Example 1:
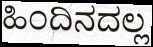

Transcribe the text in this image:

ಹಿಂದಿನದಲ್ಲ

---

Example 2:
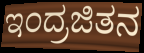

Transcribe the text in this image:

ಇಂದ್ರಜಿತನ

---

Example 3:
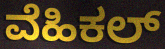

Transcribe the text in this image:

ವೆಹಿಕಲ್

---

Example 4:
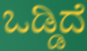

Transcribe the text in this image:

ಒಡ್ಡಿದೆ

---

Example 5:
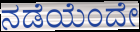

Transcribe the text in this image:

ನಡೆಯೆಂದೇ